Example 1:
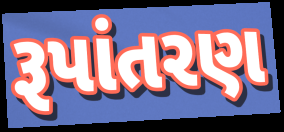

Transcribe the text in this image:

રૂપાંતરણ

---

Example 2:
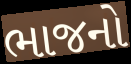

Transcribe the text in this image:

ભાજનો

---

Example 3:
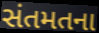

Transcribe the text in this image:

સંતમતના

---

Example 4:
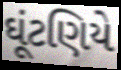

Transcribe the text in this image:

ઘૂંટણિયે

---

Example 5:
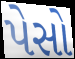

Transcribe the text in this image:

પેસો